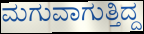
ಮಗುವಾಗುತ್ತಿದ್ದ